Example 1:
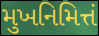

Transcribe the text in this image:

મુખનિમિત્તં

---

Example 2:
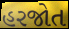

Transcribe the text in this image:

હરજોત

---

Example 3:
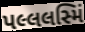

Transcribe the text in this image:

પલ્લલસ્મિં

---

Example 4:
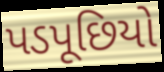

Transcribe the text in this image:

પડપૂછિયો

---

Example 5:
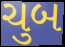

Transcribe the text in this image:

ચુબ